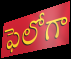
ఫెలోగా